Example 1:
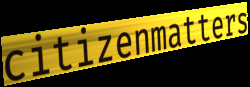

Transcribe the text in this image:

citizenmatters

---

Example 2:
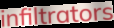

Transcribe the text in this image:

infiltrators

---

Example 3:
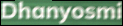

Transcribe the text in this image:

Dhanyosmi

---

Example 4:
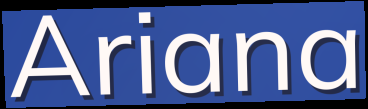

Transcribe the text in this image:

Ariana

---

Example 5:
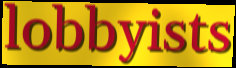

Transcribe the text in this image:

lobbyists